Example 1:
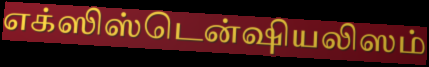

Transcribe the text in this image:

எக்ஸிஸ்டென்ஷியலிஸம்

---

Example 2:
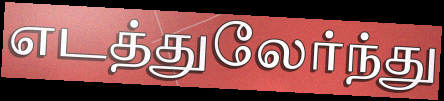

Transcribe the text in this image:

எடத்துலேர்ந்து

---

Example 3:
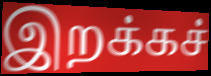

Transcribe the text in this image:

இறக்கச்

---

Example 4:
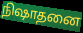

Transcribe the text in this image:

நிஷாதனை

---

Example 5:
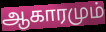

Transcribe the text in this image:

ஆகாரமும்